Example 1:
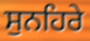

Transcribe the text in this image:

ਸੁਨਹਿਰੇ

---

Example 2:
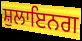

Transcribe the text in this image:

ਸ਼ੁਲਾਇਨਗ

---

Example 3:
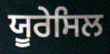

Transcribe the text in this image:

ਯੂਰੇਸਿਲ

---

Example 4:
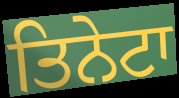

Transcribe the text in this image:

ਤਿਨੇਟਾ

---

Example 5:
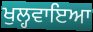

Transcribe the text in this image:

ਖੁਲ੍ਹਵਾਇਆ